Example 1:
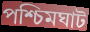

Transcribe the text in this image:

পশ্চিমঘাট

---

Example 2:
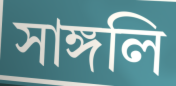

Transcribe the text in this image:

সাঙ্গলি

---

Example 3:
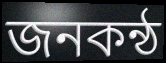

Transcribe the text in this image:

জনকন্ঠ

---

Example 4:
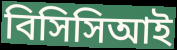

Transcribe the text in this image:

বিসিসিআই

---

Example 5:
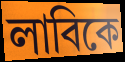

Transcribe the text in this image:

লাবিকে